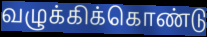
வழுக்கிக்கொண்டு